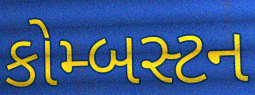
કોમ્બસ્ટન